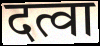
दत्वा